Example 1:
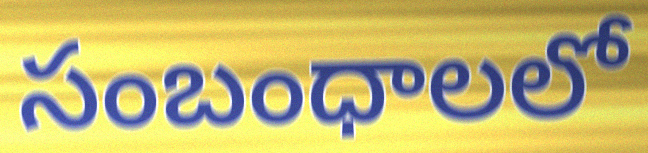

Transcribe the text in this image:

సంబంధాలలో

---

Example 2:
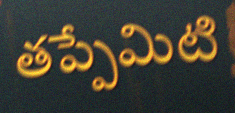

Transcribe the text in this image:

తప్పేమిటి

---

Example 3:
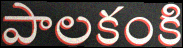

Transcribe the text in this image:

పాలకంకి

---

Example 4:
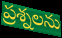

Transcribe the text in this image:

ప్రశ్నలను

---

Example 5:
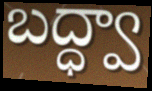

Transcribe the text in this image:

బద్ధ్వా